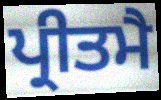
ਪ੍ਰੀਤਮੈ